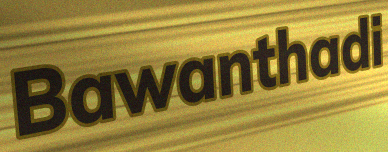
Bawanthadi